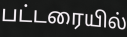
பட்டரையில்